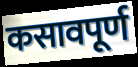
कसावपूर्ण